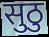
सुठु